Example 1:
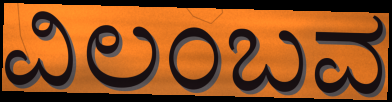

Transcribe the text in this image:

ವಿಲಂಬವ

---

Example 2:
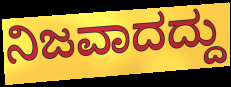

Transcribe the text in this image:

ನಿಜವಾದದ್ದು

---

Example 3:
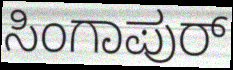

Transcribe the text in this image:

ಸಿಂಗಾಪುರ್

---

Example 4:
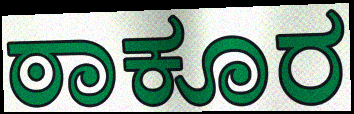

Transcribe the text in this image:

ಠಾಕೂರ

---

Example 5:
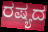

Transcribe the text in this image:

ರಷ್ಯದ